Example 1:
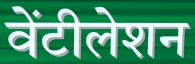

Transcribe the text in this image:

वेंटीलेशन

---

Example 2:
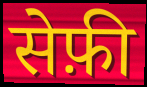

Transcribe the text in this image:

सेफ़ी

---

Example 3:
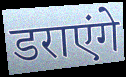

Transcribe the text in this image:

डराएंगे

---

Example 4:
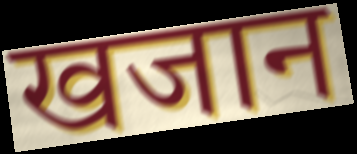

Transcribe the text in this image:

खजान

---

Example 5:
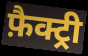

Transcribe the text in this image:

फ़ैक्ट्री